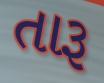
તારૂ